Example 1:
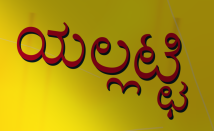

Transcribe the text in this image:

ಯಲ್ಲಟ್ಟಿ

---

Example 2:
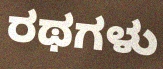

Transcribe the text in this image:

ರಥಗಳು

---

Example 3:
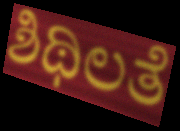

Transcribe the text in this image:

ಶಿಥಿಲತೆ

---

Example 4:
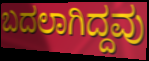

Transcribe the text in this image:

ಬದಲಾಗಿದ್ದವು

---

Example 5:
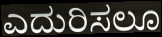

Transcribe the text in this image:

ಎದುರಿಸಲೂ